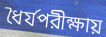
ধৈর্যপরীক্ষায়